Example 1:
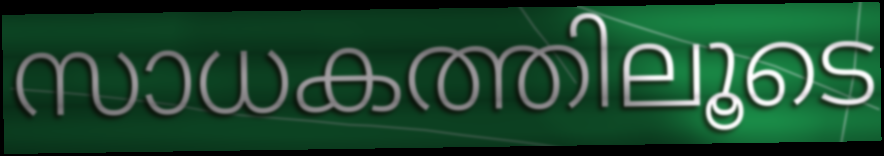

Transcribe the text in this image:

സാധകത്തിലൂടെ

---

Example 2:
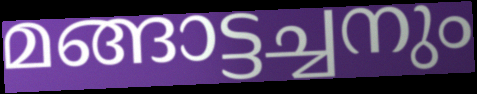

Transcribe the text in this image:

മങ്ങാട്ടച്ചനും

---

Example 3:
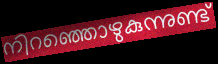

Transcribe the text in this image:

നിറഞ്ഞൊഴുകുന്നുണ്ട്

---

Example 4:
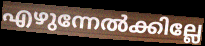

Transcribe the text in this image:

എഴുന്നേൽക്കില്ലേ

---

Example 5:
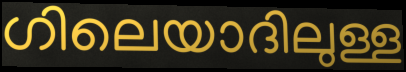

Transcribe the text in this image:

ഗിലെയാദിലുള്ള